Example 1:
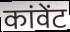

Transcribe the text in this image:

कांवेंट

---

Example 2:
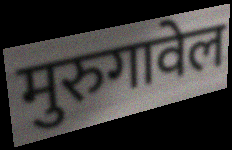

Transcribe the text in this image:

मुरुगावेल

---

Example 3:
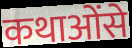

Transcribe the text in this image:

कथाओंसे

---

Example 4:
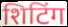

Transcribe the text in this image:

शिटिंग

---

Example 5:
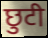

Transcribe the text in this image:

छुटी